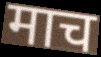
माच